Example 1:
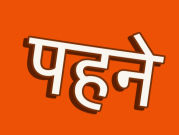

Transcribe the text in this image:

पहने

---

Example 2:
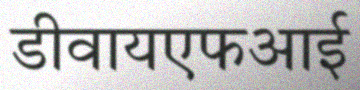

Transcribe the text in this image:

डीवायएफआई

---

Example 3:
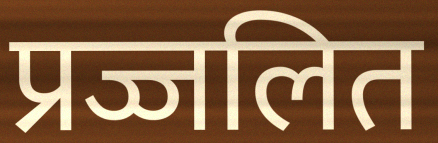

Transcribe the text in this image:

प्रज्जलित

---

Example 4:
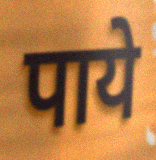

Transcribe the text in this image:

पाये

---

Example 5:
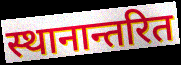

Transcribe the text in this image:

स्थानान्तरित